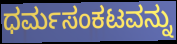
ಧರ್ಮಸಂಕಟವನ್ನು